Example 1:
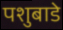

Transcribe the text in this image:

पशुबाडे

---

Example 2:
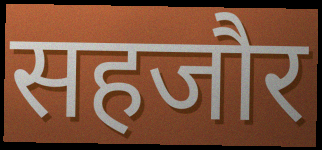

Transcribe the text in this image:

सहजौर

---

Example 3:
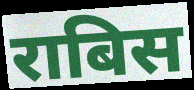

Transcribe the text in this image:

राबिस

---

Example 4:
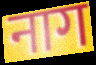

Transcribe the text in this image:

नाग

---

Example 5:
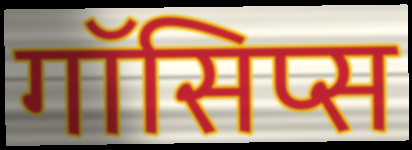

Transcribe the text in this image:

गॉसिप्स